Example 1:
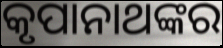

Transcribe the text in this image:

କୃପାନାଥଙ୍କର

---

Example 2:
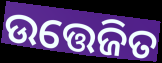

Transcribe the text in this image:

ଉତ୍ତେଜିତ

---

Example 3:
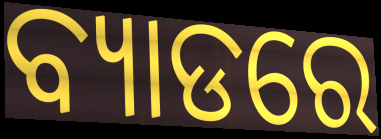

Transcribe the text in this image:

ବ୍ୟାଡରେ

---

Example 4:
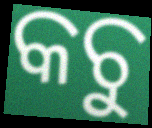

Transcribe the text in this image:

କଚୁ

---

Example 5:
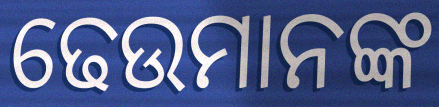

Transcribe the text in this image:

ଢେଉମାନଙ୍କ